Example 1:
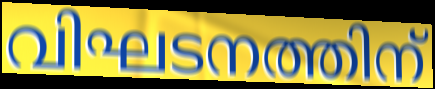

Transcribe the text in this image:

വിഘടനത്തിന്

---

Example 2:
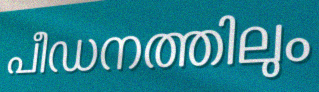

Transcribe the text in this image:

പീഡനത്തിലും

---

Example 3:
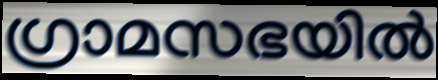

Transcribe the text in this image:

ഗ്രാമസഭയിൽ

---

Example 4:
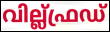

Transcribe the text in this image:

വില്ല്ഫ്രഡ്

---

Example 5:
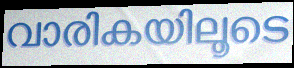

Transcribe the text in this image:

വാരികയിലൂടെ